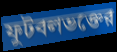
ফুটবলভক্তের